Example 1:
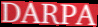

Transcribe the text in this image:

DARPA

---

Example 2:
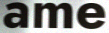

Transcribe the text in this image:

ame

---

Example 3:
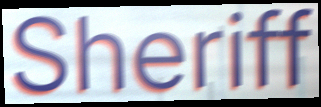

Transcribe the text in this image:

Sheriff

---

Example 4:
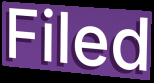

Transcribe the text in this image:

Filed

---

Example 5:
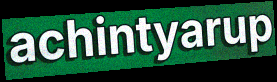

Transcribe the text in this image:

achintyarup